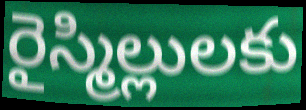
రైస్మిల్లులకు